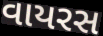
વાયરસ